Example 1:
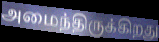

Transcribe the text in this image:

அமைந்திருக்கிறது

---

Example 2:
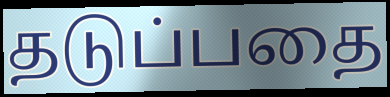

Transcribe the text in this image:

தடுப்பதை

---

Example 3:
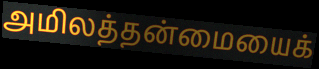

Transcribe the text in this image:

அமிலத்தன்மையைக்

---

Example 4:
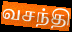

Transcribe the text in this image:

வசந்தி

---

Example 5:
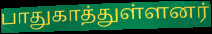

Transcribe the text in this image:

பாதுகாத்துள்ளனர்